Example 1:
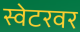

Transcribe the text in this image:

स्वेटरवर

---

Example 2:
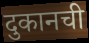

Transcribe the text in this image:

दुकानची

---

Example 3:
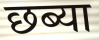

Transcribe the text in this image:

छब्या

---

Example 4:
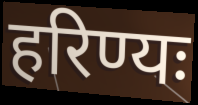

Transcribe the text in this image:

हरिण्यः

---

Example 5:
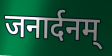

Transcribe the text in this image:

जनार्दनम्